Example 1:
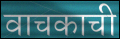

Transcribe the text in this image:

वाचकाची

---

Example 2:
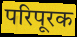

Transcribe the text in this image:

परिपूरक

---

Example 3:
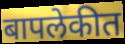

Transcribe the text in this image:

बापलेकीत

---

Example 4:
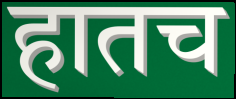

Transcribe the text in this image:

हातच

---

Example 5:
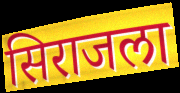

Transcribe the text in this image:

सिराजला